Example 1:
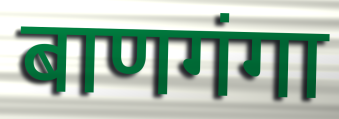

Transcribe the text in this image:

बाणगंगा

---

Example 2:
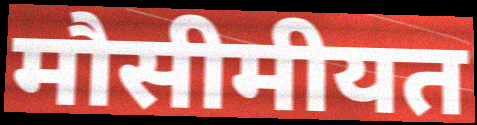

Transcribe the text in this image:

मौसीमीयत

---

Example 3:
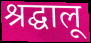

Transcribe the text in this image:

श्रद्घालू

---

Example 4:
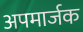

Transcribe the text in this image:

अपमार्जक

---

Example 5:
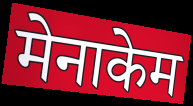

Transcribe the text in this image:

मेनाकेम